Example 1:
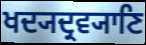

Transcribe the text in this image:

ਖਦ੍ਯਦ੍ਰਵ੍ਯਾਣਿ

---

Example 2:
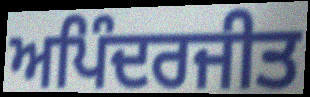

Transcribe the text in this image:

ਅਪਿੰਦਰਜੀਤ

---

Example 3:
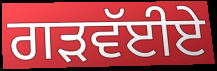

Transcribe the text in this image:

ਗੜਵੱਈਏ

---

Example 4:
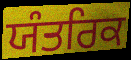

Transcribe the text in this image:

ਯੰਤਰਿਕ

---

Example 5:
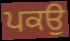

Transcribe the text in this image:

ਪਕਉ